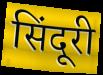
सिंदूरी